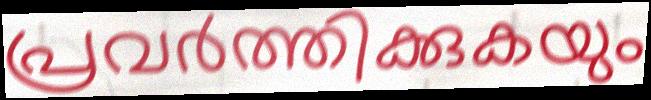
പ്രവർത്തിക്കുകയും